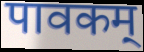
पावकम्